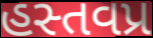
હસ્તવપ્ર